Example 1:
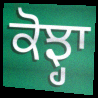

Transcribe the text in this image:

ਕੋਝ੍ਹਾ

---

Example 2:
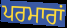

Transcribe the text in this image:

ਪਰਮਾਰਾਂ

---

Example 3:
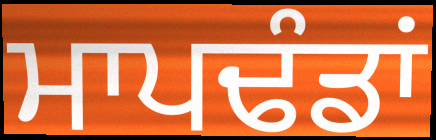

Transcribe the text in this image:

ਮਾਪਢੰਡਾਂ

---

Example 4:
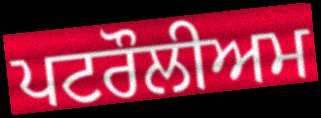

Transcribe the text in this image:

ਪਟਰੌਲੀਅਮ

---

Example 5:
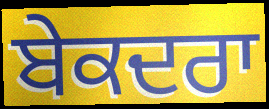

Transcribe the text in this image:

ਬੇਕਦਰਾ